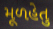
મૂળહેતુ